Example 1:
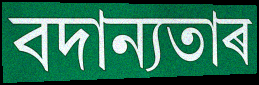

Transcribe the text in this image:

বদান্যতাৰ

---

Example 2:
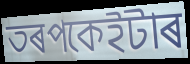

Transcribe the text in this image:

তৰপকেইটাৰ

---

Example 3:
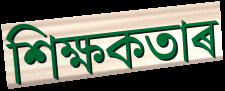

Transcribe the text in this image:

শিক্ষকতাৰ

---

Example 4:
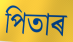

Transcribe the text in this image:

পিতাৰ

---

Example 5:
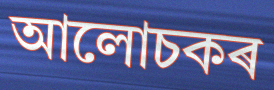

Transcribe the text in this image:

আলোচকৰ